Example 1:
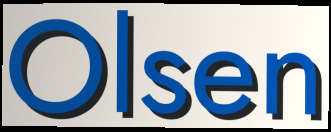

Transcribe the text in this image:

Olsen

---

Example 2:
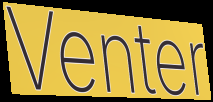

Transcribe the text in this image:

Venter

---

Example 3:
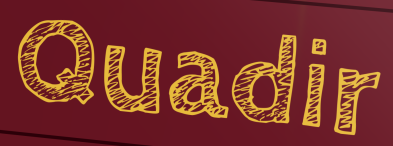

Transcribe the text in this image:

Quadir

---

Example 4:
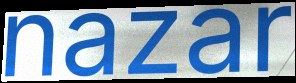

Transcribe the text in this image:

nazar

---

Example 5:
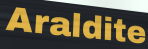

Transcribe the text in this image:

Araldite